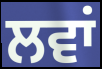
ਲਵਾਂ